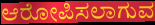
ಆರೋಪಿಸಲಾಗುವ